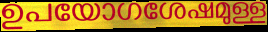
ഉപയോഗശേഷമുള്ള